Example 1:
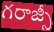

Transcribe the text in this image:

గరాజ్సీ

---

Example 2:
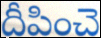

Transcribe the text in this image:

దీపించె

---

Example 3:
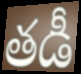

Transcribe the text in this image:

తడీ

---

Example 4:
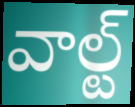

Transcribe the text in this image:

వాల్ట్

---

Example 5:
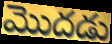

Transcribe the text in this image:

మొదడు